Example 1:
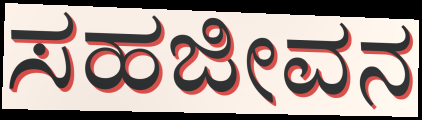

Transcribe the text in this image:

ಸಹಜೀವನ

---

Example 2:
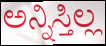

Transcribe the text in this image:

ಅನ್ನಿಸ್ತಿಲ್ಲ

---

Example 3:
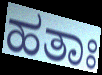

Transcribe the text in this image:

ಹತಾಃ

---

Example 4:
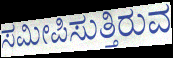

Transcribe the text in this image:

ಸಮೀಪಿಸುತ್ತಿರುವ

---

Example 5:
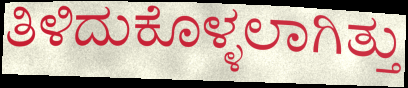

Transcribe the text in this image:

ತಿಳಿದುಕೊಳ್ಳಲಾಗಿತ್ತು